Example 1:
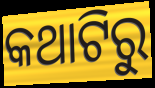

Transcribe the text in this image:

କଥାଟିରୁ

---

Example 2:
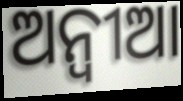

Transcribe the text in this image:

ଅନ୍ବୀଆ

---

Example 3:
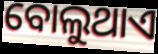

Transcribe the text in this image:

ବୋଲୁଥାଏ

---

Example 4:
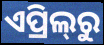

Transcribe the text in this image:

ଏପ୍ରିଲ୍‌ରୁ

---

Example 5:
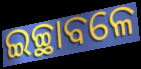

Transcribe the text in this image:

ଇଚ୍ଛାବଳେ